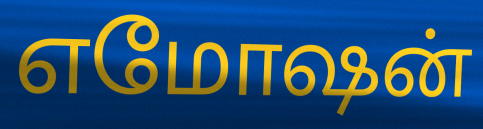
எமோஷன்